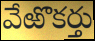
వేఱొకర్తు